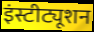
इंस्‍टीट्यूशन